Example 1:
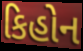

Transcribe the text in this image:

કિહોન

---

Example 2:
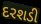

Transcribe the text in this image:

દરશડી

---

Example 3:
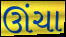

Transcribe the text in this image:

ઊંચા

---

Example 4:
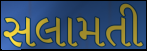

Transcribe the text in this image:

સલામતી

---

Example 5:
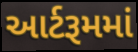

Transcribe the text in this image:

આર્ટરૂમમાં